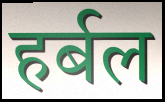
हर्बल